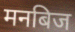
मनबिज